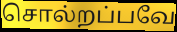
சொல்றப்பவே